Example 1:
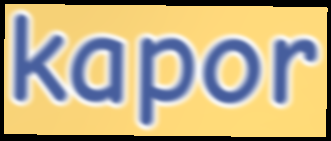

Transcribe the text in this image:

kapor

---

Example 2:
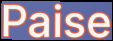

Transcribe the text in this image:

Paise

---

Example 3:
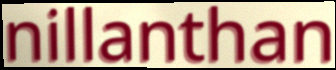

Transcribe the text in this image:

nillanthan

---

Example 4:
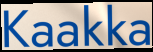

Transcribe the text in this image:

Kaakka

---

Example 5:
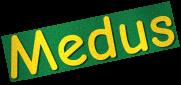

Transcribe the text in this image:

Medus